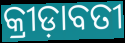
କ୍ରୀଡ଼ାବତୀ